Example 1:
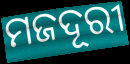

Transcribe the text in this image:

ମଜଦୂରୀ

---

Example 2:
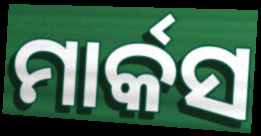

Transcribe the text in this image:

ମାର୍କସ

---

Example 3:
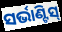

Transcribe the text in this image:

ସର୍ଭାଣ୍ଟିସ୍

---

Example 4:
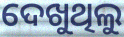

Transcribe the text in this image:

ଦେଖୁଥିଲୁ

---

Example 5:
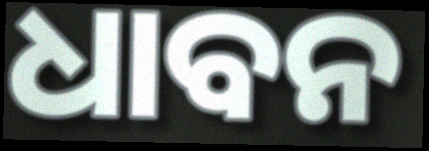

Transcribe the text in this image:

ଧାବନ